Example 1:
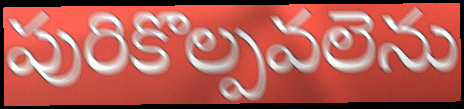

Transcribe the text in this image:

పురికొల్పవలెను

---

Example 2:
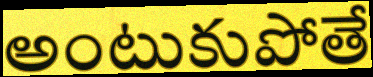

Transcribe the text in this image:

అంటుకుపోతే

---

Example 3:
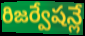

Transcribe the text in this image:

రిజర్వేషన్లే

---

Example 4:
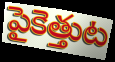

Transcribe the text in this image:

పైకెత్తుట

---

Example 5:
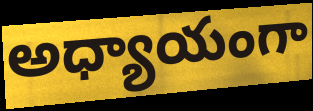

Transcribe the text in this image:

అధ్యాయంగా